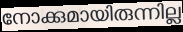
നോക്കുമായിരുന്നില്ല